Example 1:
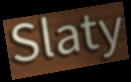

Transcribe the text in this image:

Slaty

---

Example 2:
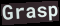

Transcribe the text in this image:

Grasp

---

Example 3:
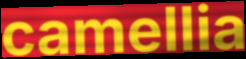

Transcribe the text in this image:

camellia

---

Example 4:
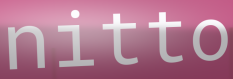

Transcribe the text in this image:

nitto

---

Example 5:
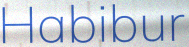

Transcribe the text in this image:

Habibur